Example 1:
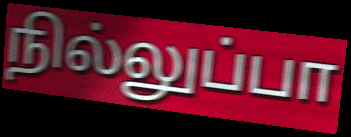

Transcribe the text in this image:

நில்லுப்பா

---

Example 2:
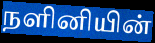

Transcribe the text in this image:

நளினியின்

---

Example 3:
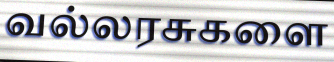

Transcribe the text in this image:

வல்லரசுகளை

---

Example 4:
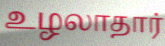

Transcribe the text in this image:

உழலாதார்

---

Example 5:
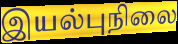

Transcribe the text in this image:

இயல்புநிலை